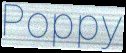
Poppy